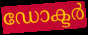
ഡോക്ടർ